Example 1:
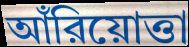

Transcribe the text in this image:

আঁরিয়োত্তা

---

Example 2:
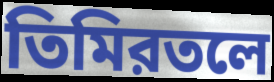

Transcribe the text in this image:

তিমিরতলে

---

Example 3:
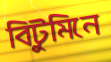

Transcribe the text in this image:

বিটুমিনে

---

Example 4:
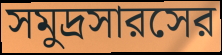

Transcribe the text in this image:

সমুদ্রসারসের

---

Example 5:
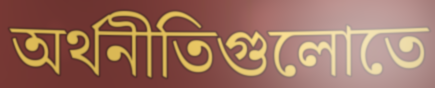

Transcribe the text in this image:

অর্থনীতিগুলোতে